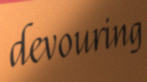
devouring